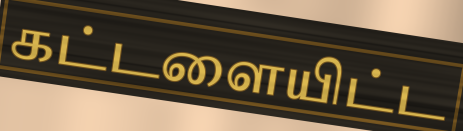
கட்டளையிட்ட